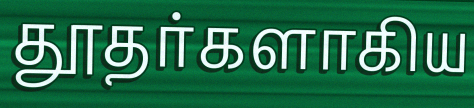
தூதர்களாகிய